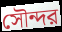
সৌন্দর